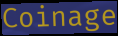
Coinage